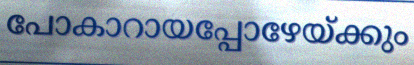
പോകാറായപ്പോഴേയ്ക്കും